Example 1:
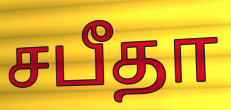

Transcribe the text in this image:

சபீதா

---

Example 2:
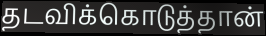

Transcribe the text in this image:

தடவிக்கொடுத்தான்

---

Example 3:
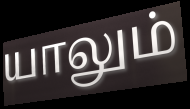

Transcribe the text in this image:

யாலும்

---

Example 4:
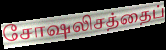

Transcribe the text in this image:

சோஷலிசத்தைப்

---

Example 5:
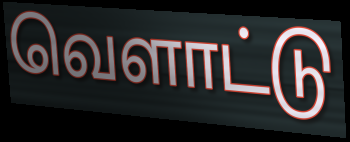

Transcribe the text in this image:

வெளாட்டு